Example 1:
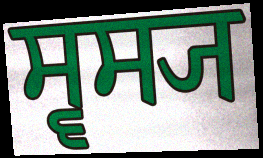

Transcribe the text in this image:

ਸ੍ਵਸ੍ਯ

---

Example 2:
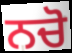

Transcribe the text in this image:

ਨਚੋ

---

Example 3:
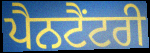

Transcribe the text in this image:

ਪੈਨਟੈਂਟਰੀ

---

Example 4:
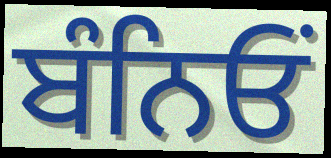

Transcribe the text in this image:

ਬੰਨਿਓਂ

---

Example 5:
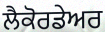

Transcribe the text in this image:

ਲੈਕੋਰਡੇਅਰ